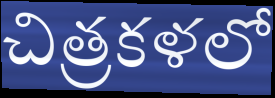
చిత్రకళలో